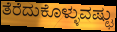
ತೆರೆದುಕೊಳ್ಳುವಷ್ಟು